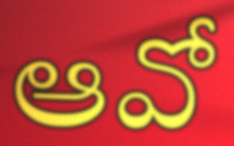
ఆవో